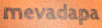
mevadapa